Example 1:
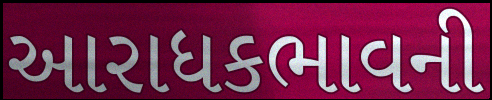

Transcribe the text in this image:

આરાધકભાવની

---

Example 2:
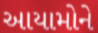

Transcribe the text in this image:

આયામોને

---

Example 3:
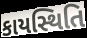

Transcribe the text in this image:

કાયસ્થિતિ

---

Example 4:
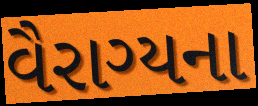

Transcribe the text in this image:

વૈરાગ્યના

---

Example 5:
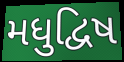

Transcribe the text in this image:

મધુદ્વિષ